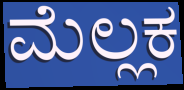
ಮೆಲ್ಲಕ